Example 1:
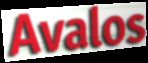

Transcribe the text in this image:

Avalos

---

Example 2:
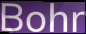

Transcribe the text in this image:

Bohr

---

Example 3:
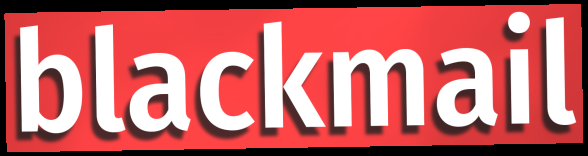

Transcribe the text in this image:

blackmail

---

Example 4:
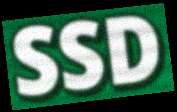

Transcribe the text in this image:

SSD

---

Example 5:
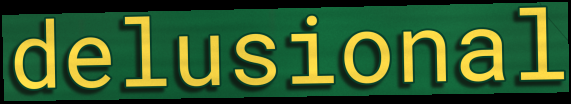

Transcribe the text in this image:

delusional